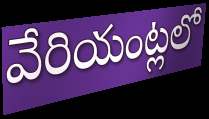
వేరియంట్లలో